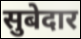
सुबेदार